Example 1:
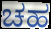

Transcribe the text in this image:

ಚಹ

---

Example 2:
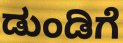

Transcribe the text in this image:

ಡುಂಡಿಗೆ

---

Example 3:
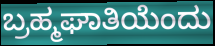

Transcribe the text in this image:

ಬ್ರಹ್ಮಘಾತಿಯೆಂದು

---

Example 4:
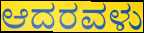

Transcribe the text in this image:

ಆದರವಳು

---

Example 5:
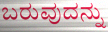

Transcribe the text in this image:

ಬರುವುದನ್ನು